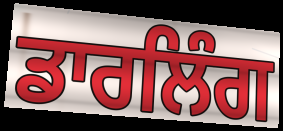
ਡਾਰਲਿੰਗ